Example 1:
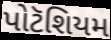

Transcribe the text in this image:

પોટૅશિયમ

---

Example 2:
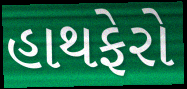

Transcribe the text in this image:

હાથફેરો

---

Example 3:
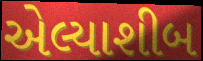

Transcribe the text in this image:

એલ્યાશીબ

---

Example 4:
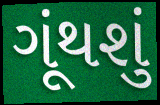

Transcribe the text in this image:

ગૂંથશું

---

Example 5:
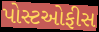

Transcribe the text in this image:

પોસ્ટઓફીસ